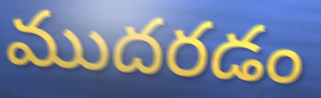
ముదరడం